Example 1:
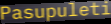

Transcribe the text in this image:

Pasupuleti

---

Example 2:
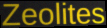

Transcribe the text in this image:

Zeolites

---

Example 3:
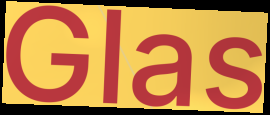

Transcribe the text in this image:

Glas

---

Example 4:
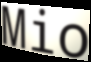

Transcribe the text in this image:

Mio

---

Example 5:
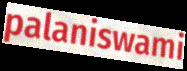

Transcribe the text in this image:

palaniswami